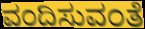
ವಂದಿಸುವಂತೆ